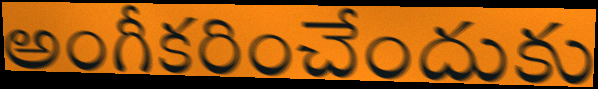
అంగీకరించేందుకు